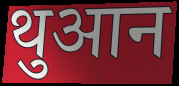
थुआन